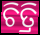
ଚିତ୍ରି